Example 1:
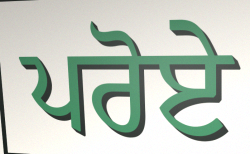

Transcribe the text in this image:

ਪਰੋਏ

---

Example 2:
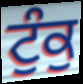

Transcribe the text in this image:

ਟੁੰਕੁ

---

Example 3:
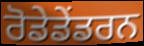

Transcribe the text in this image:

ਰੋਡੇਡੇਂਡਰਨ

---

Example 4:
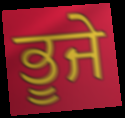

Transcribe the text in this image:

ਭੂਜੇ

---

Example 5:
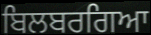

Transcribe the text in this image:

ਬਿਲਬਰਗਿਆ